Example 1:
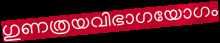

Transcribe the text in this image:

ഗുണത്രയവിഭാഗയോഗം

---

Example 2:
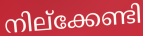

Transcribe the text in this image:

നില്ക്കേണ്ടി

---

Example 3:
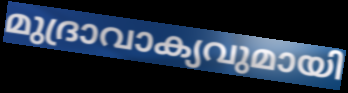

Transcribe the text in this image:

മുദ്രാവാക്യവുമായി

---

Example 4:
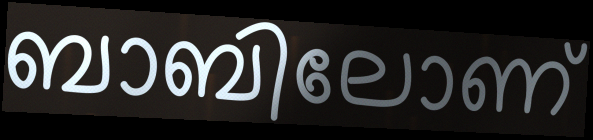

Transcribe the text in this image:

ബാബിലോണ്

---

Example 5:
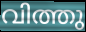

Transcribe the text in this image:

വിത്തു